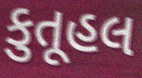
કુતૂહલ